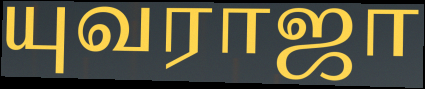
யுவராஜா